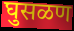
घुसळण